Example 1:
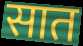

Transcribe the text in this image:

सात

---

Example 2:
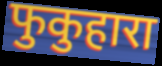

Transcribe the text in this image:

फुकुहारा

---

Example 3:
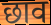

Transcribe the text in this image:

छाव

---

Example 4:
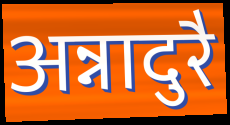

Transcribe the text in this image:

अन्नादुरै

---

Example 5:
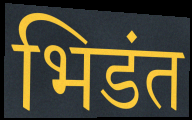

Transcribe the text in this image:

भिडंत